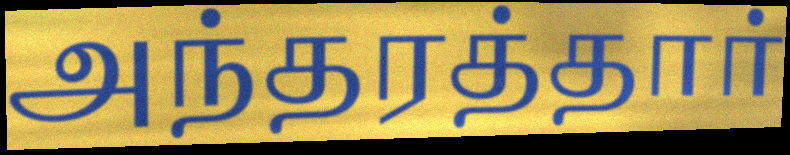
அந்தரத்தார்